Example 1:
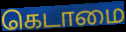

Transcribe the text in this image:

கெடாமை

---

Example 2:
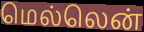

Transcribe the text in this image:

மெல்லென்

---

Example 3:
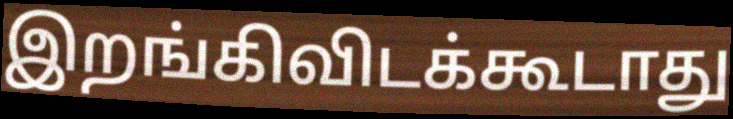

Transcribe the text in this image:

இறங்கிவிடக்கூடாது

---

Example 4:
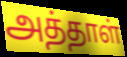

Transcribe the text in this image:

அத்தாள்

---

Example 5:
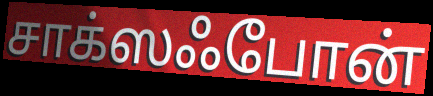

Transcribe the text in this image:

சாக்ஸஃபோன்